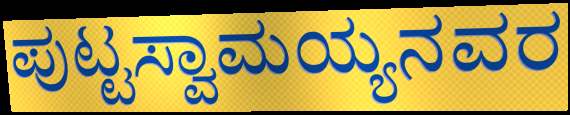
ಪುಟ್ಟಸ್ವಾಮಯ್ಯನವರ